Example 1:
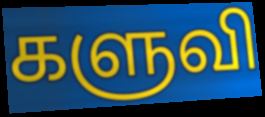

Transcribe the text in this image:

களுவி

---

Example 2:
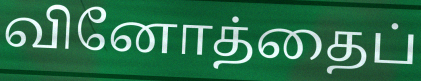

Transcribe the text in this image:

வினோத்தைப்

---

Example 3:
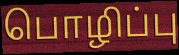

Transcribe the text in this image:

பொழிப்பு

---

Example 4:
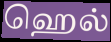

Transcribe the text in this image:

ஹெல்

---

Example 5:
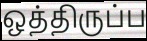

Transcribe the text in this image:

ஒத்திருப்ப